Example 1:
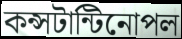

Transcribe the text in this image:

কন্সটান্টিনোপল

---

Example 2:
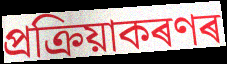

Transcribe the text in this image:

প্ৰক্ৰিয়াকৰণৰ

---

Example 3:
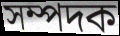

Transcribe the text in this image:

সম্পদক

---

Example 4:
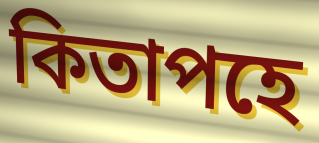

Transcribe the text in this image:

কিতাপহে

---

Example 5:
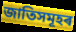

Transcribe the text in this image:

জাতিসমূহৰ